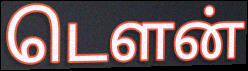
டௌன்